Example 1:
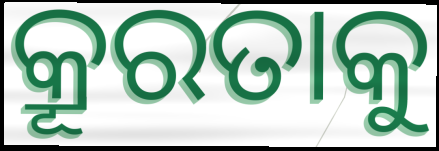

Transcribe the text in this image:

କ୍ରୂରତାକୁ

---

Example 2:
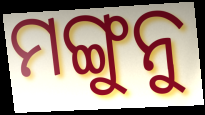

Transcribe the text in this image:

ମଙ୍ଗୁନୁ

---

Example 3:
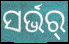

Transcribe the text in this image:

ସର୍ଭର୍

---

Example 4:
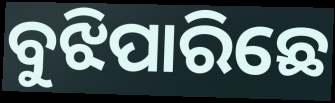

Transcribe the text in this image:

ବୁଝିପାରିଛେ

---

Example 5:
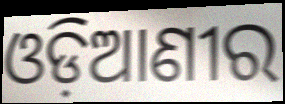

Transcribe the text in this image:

ଓଡ଼ିଆଣୀର